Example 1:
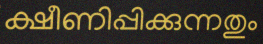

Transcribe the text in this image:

ക്ഷീണിപ്പിക്കുന്നതും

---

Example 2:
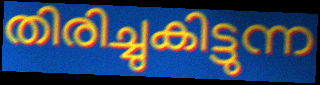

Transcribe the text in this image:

തിരിച്ചുകിട്ടുന്ന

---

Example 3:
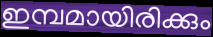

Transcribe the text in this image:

ഇമ്പമായിരിക്കും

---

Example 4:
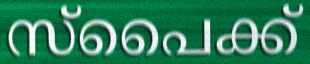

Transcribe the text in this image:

സ്പൈക്ക്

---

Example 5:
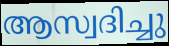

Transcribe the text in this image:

ആസ്വദിച്ചു